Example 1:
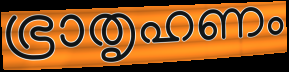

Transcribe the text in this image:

ഭ്രാതൃഹണം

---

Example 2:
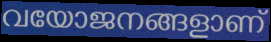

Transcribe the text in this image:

വയോജനങ്ങളാണ്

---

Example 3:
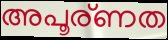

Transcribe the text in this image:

അപൂര്ണത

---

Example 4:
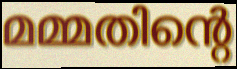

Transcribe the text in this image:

മമ്മതിന്റെ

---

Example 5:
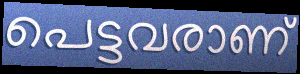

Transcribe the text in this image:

പെട്ടവരാണ്